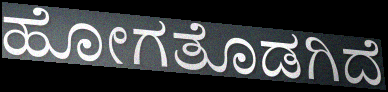
ಹೋಗತೊಡಗಿದೆ